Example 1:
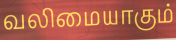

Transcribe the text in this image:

வலிமையாகும்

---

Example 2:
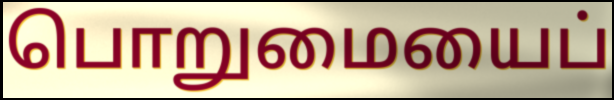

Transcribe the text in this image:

பொறுமையைப்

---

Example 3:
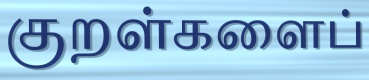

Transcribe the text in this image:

குறள்களைப்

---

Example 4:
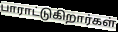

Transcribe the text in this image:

பாராட்டுகிறார்கள்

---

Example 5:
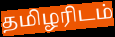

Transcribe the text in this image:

தமிழரிடம்